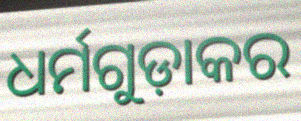
ଧର୍ମଗୁଡ଼ାକର